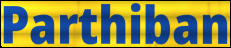
Parthiban